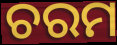
ଚରମ